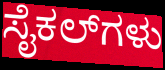
ಸೈಕಲ್‌ಗಳು